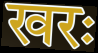
खरः